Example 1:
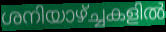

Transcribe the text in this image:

ശനിയാഴ്ച്ചകളിൽ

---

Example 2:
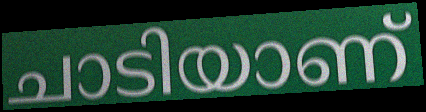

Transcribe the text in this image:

ചാടിയാണ്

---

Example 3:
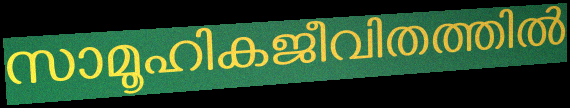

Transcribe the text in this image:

സാമൂഹികജീവിതത്തിൽ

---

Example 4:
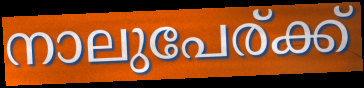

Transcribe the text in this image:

നാലുപേര്ക്ക്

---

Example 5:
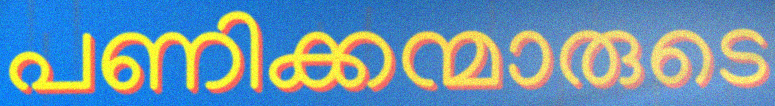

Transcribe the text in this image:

പണിക്കന്മാരുടെ